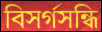
বিসর্গসন্ধি